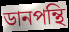
ডানপন্থি